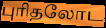
புரிதலோட